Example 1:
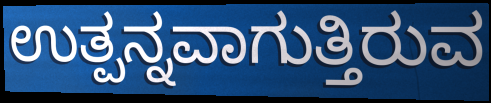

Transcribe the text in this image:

ಉತ್ಪನ್ನವಾಗುತ್ತಿರುವ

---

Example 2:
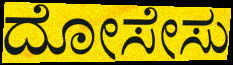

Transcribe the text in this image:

ದೋಸೇಸು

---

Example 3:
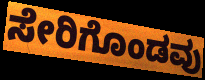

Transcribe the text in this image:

ಸೇರಿಗೊಂಡವು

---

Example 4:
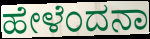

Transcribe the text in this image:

ಹೇಳೆಂದನಾ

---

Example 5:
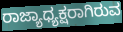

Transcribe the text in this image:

ರಾಜ್ಯಾಧ್ಯಕ್ಷರಾಗಿರುವ